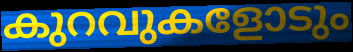
കുറവുകളോടും